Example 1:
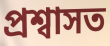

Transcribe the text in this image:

প্ৰশ্বাসত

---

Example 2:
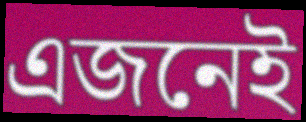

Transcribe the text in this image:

এজনেই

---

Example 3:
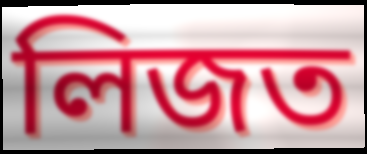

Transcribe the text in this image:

লিজত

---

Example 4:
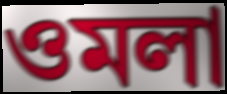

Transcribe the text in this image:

ওমলা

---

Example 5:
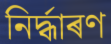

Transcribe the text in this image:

নিৰ্দ্ধাৰণ